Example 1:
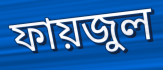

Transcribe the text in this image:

ফায়জুল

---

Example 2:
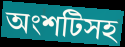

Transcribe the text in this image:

অংশটিসহ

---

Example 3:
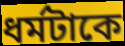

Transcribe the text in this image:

ধর্মটাকে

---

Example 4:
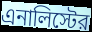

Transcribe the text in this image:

এনালিস্টের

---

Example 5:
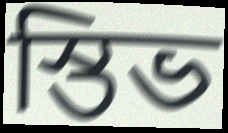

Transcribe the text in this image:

স্তিভ